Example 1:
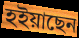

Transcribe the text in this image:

হইয়াছেন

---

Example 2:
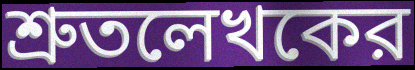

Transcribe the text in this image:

শ্রুতলেখকের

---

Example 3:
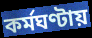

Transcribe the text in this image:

কর্মঘণ্টায়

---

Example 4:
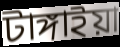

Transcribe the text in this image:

টাঙ্গাইয়া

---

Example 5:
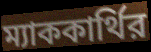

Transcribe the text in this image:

ম্যাককার্থির